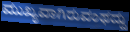
ಮುಖ್ಯವಾಗಿರುವಂಥದ್ದು